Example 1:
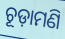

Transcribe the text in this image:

ଚୂଡ଼ାମଣି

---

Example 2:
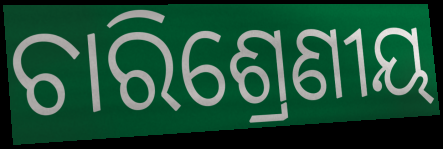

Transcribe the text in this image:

ଚାରିଶ୍ରେଣୀୟ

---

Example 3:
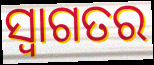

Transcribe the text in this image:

ସ୍ଵାଗତର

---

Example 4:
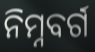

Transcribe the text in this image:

ନିମ୍ନବର୍ଗ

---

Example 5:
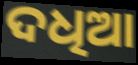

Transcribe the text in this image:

ଦଧିଆ